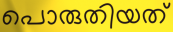
പൊരുതിയത്